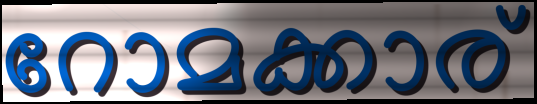
റോമക്കാര്